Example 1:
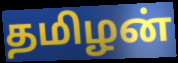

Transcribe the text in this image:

தமிழன்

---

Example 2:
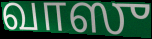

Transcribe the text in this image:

வாஸு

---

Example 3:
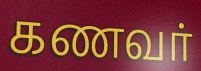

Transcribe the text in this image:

கணவர்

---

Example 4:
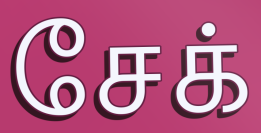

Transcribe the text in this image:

சேக்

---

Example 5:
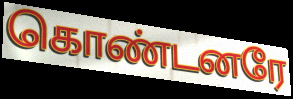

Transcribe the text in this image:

கொண்டனரே